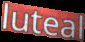
luteal